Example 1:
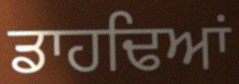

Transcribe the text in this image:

ਡਾਹਢਿਆਂ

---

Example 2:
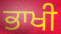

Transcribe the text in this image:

ਭਾਖੀ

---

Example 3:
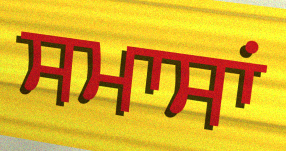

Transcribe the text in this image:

ਸਮਾਸਾਂ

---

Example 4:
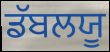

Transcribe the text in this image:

ਡੱਬਲਯੂ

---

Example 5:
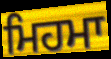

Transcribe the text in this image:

ਮਿਹਮਾ